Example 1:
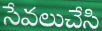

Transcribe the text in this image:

సేవలుచేసి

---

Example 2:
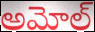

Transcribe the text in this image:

అమోల్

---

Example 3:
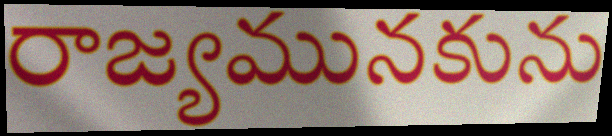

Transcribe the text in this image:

రాజ్యమునకును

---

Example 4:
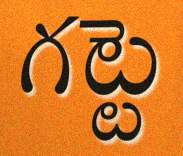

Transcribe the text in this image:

గట్టె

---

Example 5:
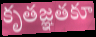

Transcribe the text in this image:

కృతజ్ఞతకూ